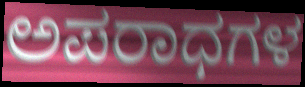
ಅಪರಾಧಗಳ